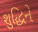
શુદ્ધિને